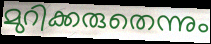
മുറിക്കരുതെന്നും